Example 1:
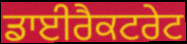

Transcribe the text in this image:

ਡਾਈਰੈਕਟਰੇਟ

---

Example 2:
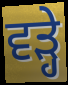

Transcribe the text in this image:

ਵੜ੍ਹੇ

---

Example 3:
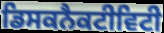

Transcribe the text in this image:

ਡਿਸਕਨੈਕਟੀਵਿਟੀ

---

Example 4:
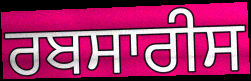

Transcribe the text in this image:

ਰਬਸਾਰੀਸ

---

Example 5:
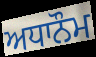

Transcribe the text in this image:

ਅਧਾਨੌਮ